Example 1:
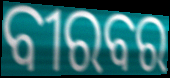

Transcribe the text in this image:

ବୀରବର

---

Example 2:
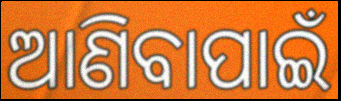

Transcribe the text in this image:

ଆଣିବାପାଇଁ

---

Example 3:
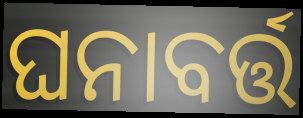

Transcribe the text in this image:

ଘନାବର୍ତ୍ତ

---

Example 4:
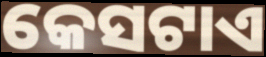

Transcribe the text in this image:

କେସଟାଏ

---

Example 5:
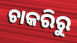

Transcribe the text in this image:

ଚାକରିରୁ